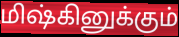
மிஷ்கினுக்கும்